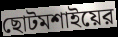
ছোটমশাইয়ের